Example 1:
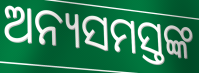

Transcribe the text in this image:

ଅନ୍ୟସମସ୍ତଙ୍କ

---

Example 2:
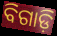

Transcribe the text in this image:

ବିଗାଡ଼ି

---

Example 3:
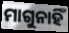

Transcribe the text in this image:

ମାଗୁନାହିଁ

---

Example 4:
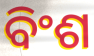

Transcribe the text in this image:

ବିଂଶ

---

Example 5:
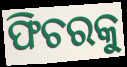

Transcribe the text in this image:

ଫିଚରକୁ